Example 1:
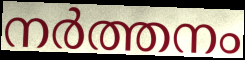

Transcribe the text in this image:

നർത്തനം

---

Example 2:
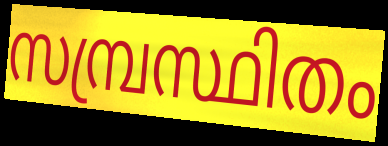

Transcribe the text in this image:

സമ്പ്രസ്ഥിതം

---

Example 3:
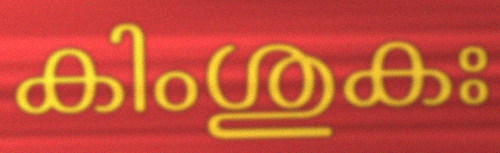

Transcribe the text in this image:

കിംശുകഃ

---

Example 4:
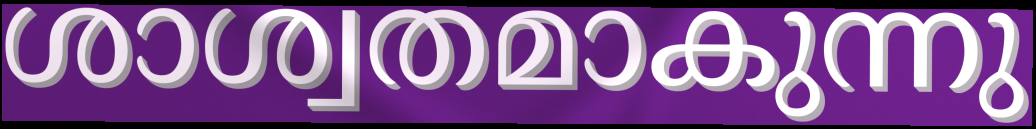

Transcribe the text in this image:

ശാശ്വതമാകുന്നു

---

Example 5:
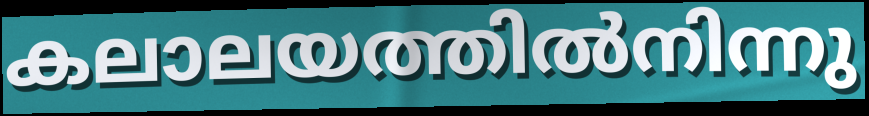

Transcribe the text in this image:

കലാലയത്തിൽനിന്നു